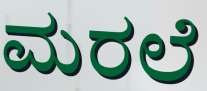
ಮರಲೆ